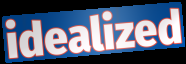
idealized